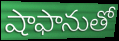
షాఫానుతో